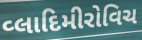
વ્લાદિમીરોવિચ